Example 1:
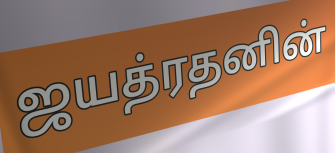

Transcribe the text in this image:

ஜயத்ரதனின்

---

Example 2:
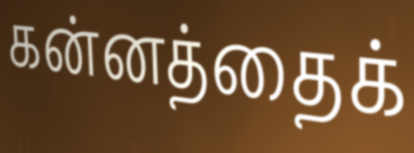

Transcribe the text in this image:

கன்னத்தைக்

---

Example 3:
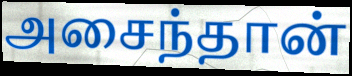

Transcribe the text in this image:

அசைந்தான்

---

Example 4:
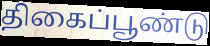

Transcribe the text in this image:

திகைப்பூண்டு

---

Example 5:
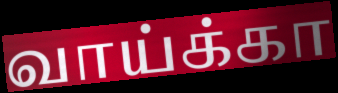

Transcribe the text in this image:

வாய்க்கா